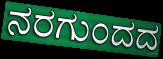
ನರಗುಂದದ